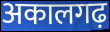
अकालगढ़